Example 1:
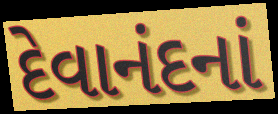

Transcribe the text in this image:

દેવાનંદનાં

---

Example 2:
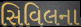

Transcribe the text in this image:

સિવિલના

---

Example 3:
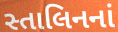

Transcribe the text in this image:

સ્તાલિનનાં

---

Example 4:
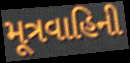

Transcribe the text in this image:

મૂત્રવાહિની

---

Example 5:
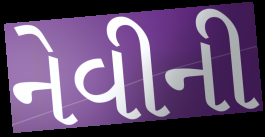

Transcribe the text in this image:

નેવીની